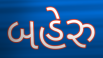
બહેરુ